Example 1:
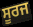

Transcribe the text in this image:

ਸੂਰਜ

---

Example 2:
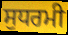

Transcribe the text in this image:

ਸੁਧਰਮੀ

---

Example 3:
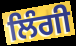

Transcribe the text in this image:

ਲਿੰਗੀ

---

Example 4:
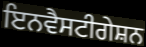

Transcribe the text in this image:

ਇਨਵੈਸਟੀਗੇਸ਼ਨ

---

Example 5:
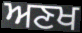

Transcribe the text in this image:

ਅਣਖ